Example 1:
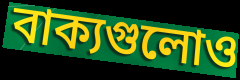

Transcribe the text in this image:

বাক্যগুলোও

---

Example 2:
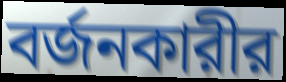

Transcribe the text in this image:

বর্জনকারীর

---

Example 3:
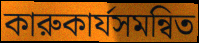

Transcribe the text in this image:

কারুকার্যসমন্বিত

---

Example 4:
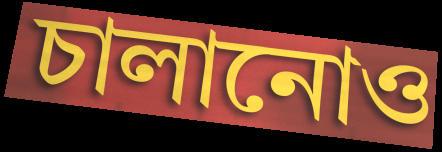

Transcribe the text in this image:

চালানোও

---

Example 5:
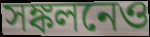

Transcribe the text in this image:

সঙ্কলনেও